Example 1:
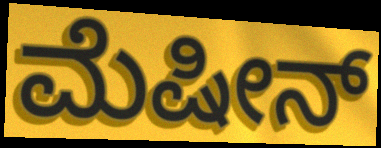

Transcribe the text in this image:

ಮೆಷೀನ್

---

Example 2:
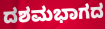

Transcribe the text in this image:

ದಶಮಭಾಗದ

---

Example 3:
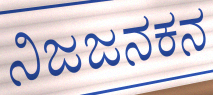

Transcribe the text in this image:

ನಿಜಜನಕನ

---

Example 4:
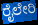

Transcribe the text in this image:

ರೈಲೇರಿ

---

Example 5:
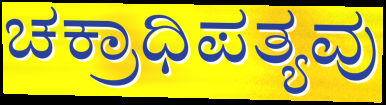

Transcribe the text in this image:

ಚಕ್ರಾಧಿಪತ್ಯವು